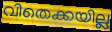
വിതെക്കയില്ല